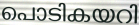
പൊടികയറി